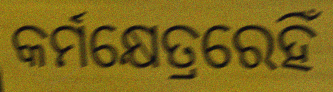
କର୍ମକ୍ଷେତ୍ରରେହିଁ